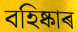
বহিষ্কাৰ